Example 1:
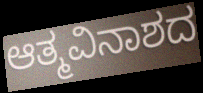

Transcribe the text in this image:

ಆತ್ಮವಿನಾಶದ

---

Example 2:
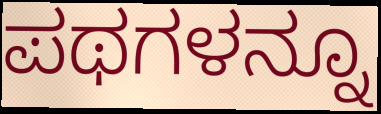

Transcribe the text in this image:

ಪಥಗಳನ್ನೂ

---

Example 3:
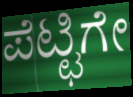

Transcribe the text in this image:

ಪೆಟ್ಟಿಗೇ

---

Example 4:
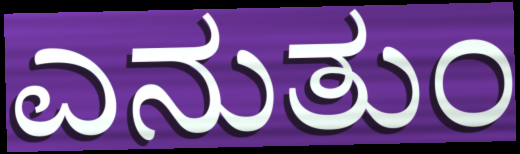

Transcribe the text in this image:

ಎನುತುಂ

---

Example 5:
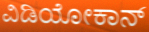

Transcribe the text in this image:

ವಿಡಿಯೋಕಾನ್